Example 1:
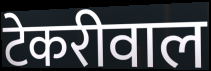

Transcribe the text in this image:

टेकरीवाल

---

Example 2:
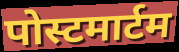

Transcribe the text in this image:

पोस्टमार्टम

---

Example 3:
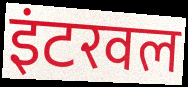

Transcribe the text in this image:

इंटरवल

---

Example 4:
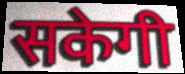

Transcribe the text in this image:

सकेगी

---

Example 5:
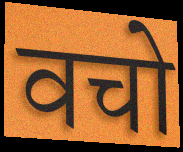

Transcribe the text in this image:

वचो